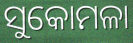
ସୁକୋମଳା